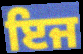
ਇਜ